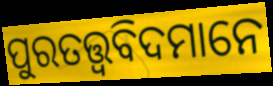
ପୁରତତ୍ତ୍ୱବିଦମାନେ